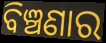
ବିଞ୍ଚଣାର